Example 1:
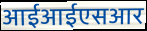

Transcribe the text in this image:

आईआईएसआर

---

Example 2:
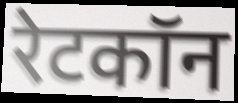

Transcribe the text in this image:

रेटकॉन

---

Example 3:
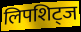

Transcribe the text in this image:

लिपशिट्ज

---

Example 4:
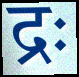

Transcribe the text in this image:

द्रः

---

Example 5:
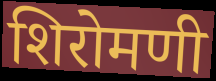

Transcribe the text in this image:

शिरोमणी